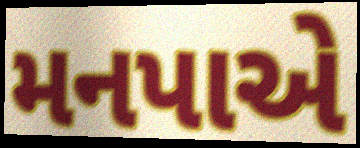
મનપાએ